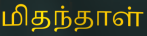
மிதந்தாள்